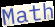
Math